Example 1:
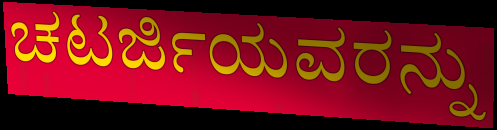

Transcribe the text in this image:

ಚಟರ್ಜಿಯವರನ್ನು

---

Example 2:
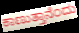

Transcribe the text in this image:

ಕಾಣುತ್ತಾನೆಂದು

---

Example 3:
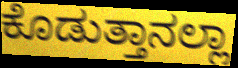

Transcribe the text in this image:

ಕೊಡುತ್ತಾನಲ್ಲಾ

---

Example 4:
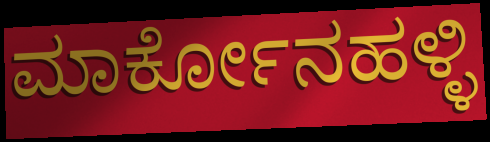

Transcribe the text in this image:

ಮಾರ್ಕೋನಹಳ್ಳಿ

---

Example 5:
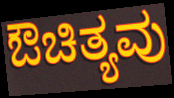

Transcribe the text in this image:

ಔಚಿತ್ಯವು